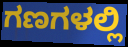
ಗಣಗಳಲ್ಲಿ